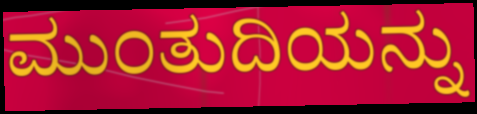
ಮುಂತುದಿಯನ್ನು